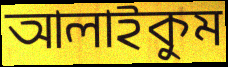
আলাইকুম